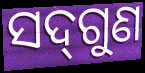
ସଦ୍‌ଗୁଣ